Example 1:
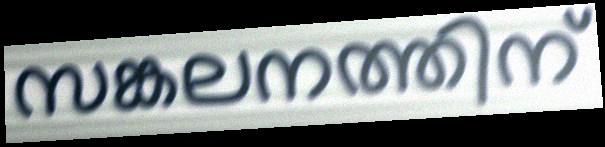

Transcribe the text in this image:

സങ്കലനത്തിന്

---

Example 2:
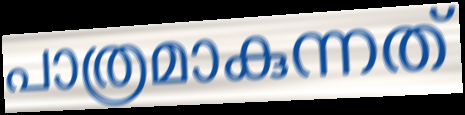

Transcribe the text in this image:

പാത്രമാകുന്നത്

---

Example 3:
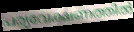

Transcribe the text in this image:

പര്യവേക്ഷണത്തിൽ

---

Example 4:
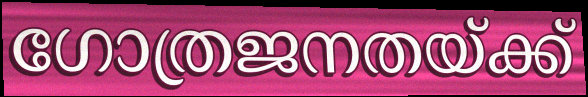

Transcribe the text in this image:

ഗോത്രജനതയ്ക്ക്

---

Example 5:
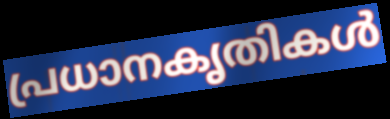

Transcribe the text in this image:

പ്രധാനകൃതികൾ